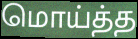
மொய்த்த